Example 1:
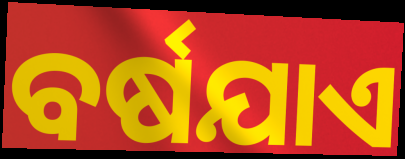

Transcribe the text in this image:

ବର୍ଷଯାଏ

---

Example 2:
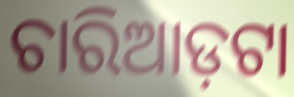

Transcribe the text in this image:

ଚାରିଆଡ଼ଟା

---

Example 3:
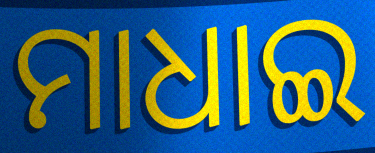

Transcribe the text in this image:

ମାଧାଇ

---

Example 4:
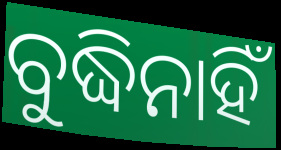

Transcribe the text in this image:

ବୁଦ୍ଧିନାହିଁ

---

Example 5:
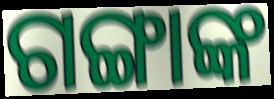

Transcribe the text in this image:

ଗଙ୍ଗାଙ୍କ